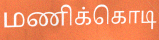
மணிக்கொடி